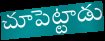
చూపెట్టాడు